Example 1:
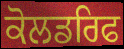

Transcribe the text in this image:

ਕੋਲਡਰਿਫ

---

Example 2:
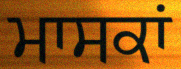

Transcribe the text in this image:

ਮਾਸਕਾਂ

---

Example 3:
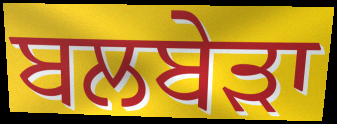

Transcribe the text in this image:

ਬਲਬੇਡ਼ਾ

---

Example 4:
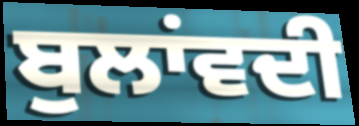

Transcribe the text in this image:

ਬੁਲਾਂਵਦੀ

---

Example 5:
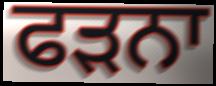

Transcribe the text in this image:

ਫੜਨਾ